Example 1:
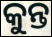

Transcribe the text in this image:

କୁନ୍ତ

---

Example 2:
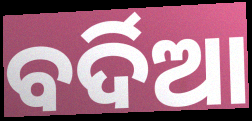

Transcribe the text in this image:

ବର୍ଦିଆ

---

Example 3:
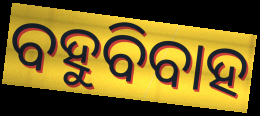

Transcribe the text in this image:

ବହୁବିବାହ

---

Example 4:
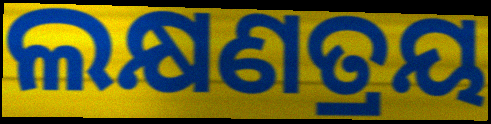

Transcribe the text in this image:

ଲକ୍ଷଣତ୍ରୟ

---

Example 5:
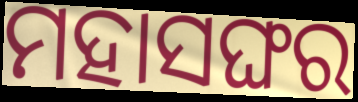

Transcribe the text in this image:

ମହାସଙ୍ଘର